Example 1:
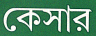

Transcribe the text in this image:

কেসার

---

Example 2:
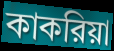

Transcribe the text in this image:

কাকরিয়া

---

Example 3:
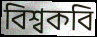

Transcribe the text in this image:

বিশ্বকবি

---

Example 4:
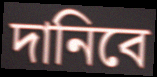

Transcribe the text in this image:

দানিবে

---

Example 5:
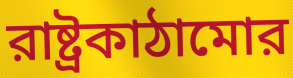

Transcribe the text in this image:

রাষ্ট্রকাঠামোর